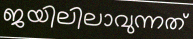
ജയിലിലാവുന്നത്